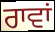
ਰਾਵਾਂ